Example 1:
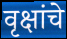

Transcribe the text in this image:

वृक्षांचे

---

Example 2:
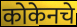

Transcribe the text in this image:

कोकेनचे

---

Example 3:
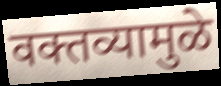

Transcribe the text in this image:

वक्तव्यामुळे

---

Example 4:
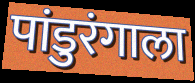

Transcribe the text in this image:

पांडुरंगाला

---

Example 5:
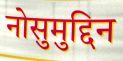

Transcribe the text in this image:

नोसुमुद्दिन